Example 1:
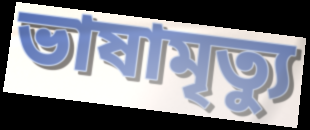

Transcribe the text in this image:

ভাষামৃত্যু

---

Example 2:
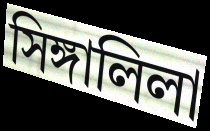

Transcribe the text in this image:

সিঙ্গালিলা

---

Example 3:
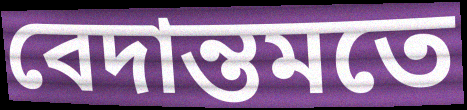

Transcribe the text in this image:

বেদান্তমতে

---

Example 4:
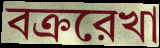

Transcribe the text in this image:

বক্ররেখা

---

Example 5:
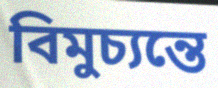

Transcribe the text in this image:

বিমুচ্যন্তে